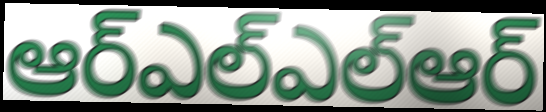
ఆర్ఎల్ఎల్ఆర్